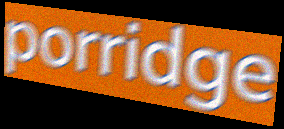
porridge